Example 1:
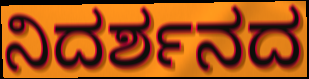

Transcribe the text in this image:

ನಿದರ್ಶನದ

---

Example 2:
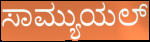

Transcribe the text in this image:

ಸಾಮ್ಯುಯಲ್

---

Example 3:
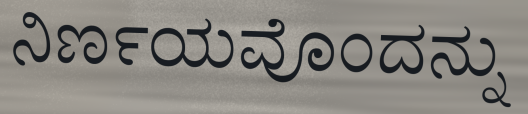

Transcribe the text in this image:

ನಿರ್ಣಯವೊಂದನ್ನು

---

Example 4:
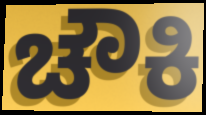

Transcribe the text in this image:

ಚೌಕಿ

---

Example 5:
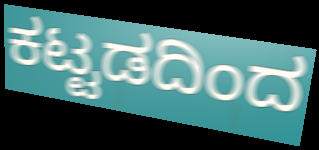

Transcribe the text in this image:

ಕಟ್ಟಡದಿಂದ